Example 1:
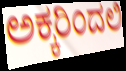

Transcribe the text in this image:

ಅಕ್ಕರಿಂದಲಿ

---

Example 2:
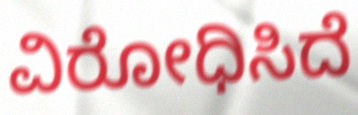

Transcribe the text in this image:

ವಿರೋಧಿಸಿದೆ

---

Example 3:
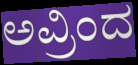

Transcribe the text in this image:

ಅವ್ರಿಂದ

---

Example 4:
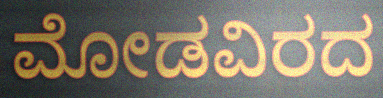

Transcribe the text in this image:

ಮೋಡವಿರದ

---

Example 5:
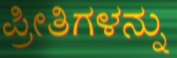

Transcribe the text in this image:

ಪ್ರೀತಿಗಳನ್ನು